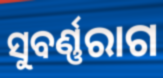
ସୁବର୍ଣ୍ଣରାଗ